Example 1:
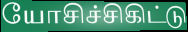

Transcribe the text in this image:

யோசிச்சிகிட்டு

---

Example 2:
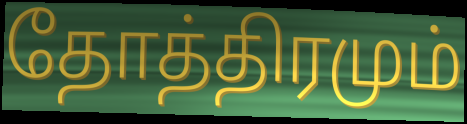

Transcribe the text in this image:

தோத்திரமும்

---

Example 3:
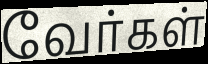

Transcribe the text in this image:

வேர்கள்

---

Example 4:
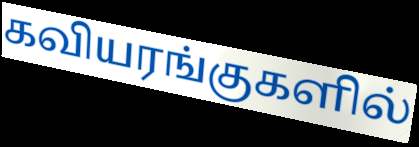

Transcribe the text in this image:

கவியரங்குகளில்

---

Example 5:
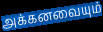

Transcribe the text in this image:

அக்கனவையும்